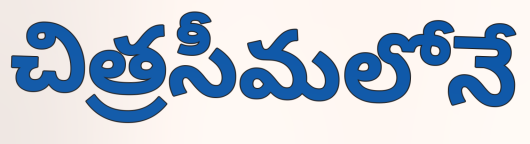
చిత్రసీమలోనే